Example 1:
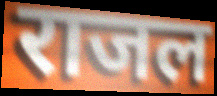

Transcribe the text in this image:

राजल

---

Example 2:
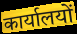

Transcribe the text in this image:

कार्यालयों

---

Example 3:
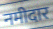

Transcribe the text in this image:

नमीदार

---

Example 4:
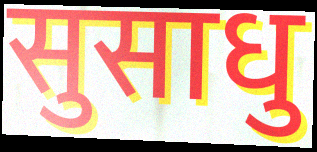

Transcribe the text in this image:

सुसाधु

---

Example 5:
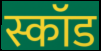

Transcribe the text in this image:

स्कॉड